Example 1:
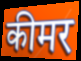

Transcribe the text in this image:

कीमर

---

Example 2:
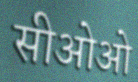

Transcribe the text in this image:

सीओओ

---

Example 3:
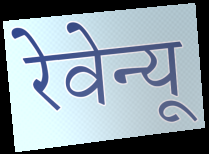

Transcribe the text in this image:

रेवेन्यू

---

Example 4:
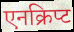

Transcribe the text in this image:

एनक्रिप्ट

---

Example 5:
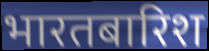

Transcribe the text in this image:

भारतबारिश